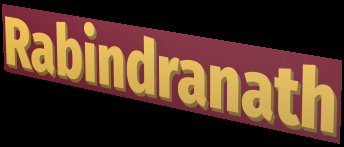
Rabindranath